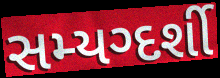
સમ્યગ્દર્શી